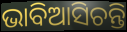
ଭାବିଆସିଚନ୍ତି